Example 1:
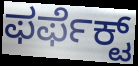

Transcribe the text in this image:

ಫರ್ಫೆಕ್ಟ್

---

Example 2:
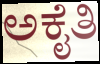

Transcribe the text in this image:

ಅಕೈತಿ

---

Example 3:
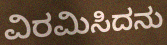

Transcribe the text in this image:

ವಿರಮಿಸಿದನು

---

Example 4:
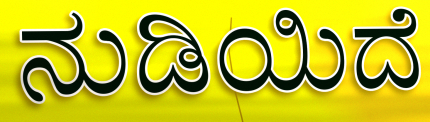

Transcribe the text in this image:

ನುಡಿಯಿದೆ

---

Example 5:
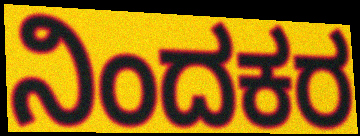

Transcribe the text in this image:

ನಿಂದಕರ